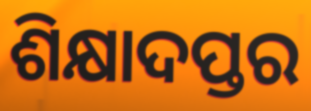
ଶିକ୍ଷାଦପ୍ତର